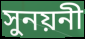
সুনয়নী